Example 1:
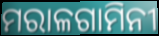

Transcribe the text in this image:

ମରାଳଗାମିନୀ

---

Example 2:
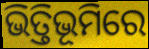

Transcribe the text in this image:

ଭିତ୍ତିଭୂମିରେ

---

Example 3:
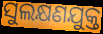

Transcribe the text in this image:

ସୁଲକ୍ଷଣଯୁକ୍ତ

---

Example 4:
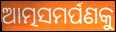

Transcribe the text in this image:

ଆତ୍ମସମର୍ପଣକୁ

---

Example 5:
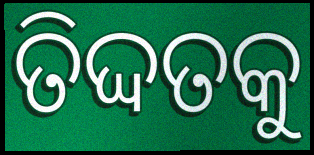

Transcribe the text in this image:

ତିଦ୍ଦତକୁ